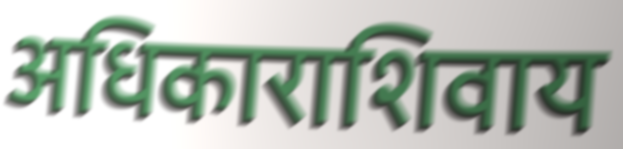
अधिकाराशिवाय